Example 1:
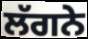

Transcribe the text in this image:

ਲੱਗਨੇ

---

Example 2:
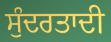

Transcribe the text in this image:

ਸੁੰਦਰਤਾਦੀ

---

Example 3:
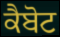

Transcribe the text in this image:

ਕੈਬੋਟ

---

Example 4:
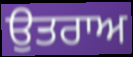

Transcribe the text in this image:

ਉਤਰਾਅ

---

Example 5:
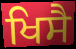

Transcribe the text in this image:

ਖਿਸੈ